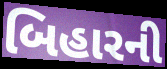
બિહારની